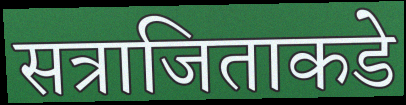
सत्राजिताकडे